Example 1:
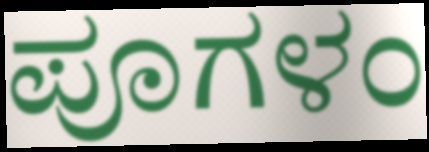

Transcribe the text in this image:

ಪೂಗಳಂ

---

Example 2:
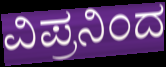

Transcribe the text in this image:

ವಿಪ್ರನಿಂದ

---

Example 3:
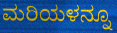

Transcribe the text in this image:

ಮರಿಯಳನ್ನೂ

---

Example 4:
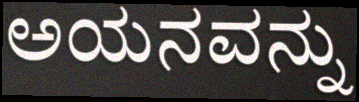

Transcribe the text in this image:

ಅಯನವನ್ನು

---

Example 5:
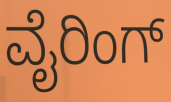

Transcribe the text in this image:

ವೈರಿಂಗ್